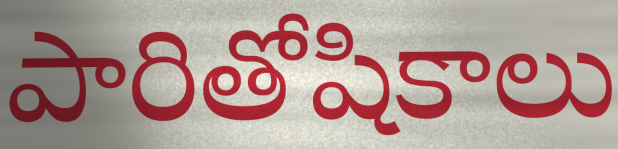
పారితోషికాలు